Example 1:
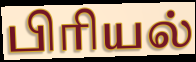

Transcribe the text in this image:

பிரியல்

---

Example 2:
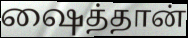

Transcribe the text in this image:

ஷைத்தான்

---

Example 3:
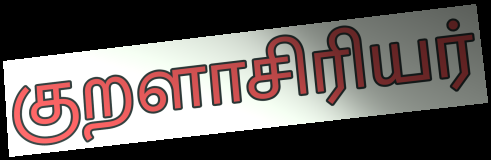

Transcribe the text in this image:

குறளாசிரியர்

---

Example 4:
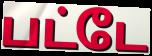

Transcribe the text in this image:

பட்டே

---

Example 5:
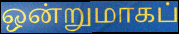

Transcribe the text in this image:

ஒன்றுமாகப்